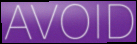
AVOID